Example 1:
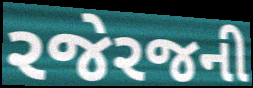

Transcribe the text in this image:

રજેરજની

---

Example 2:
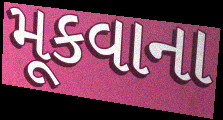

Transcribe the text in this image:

મૂકવાના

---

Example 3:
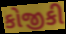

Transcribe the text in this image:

કોજીકી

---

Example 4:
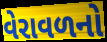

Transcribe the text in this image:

વેરાવળનો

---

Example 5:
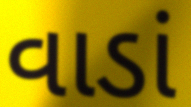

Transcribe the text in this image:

વાડાં